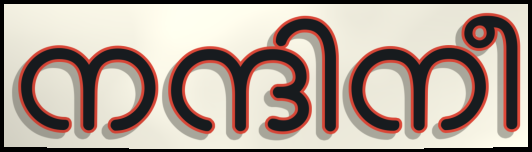
നന്ദിനീ